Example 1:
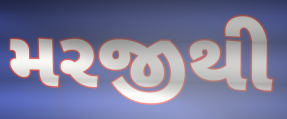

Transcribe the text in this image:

મરજીથી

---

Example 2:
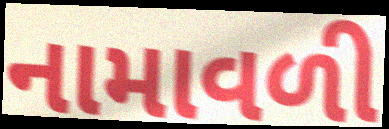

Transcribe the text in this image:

નામાવળી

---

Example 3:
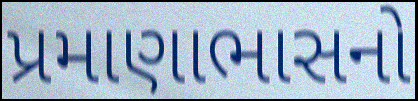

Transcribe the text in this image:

પ્રમાણાભાસનો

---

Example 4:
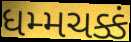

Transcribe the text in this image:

ધમ્મચક્કં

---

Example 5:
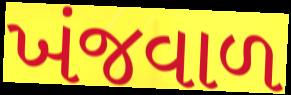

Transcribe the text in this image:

ખંજવાળ